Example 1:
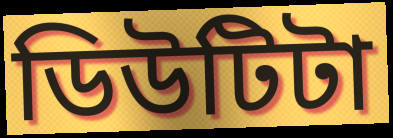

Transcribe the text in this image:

ডিউটিটা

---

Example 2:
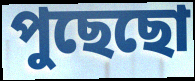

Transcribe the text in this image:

পুছেছো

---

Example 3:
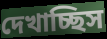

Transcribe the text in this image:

দেখাচ্ছিস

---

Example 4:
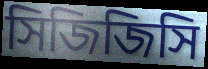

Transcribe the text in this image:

সিজিজিসি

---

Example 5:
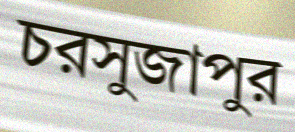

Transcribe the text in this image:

চরসুজাপুর